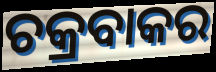
ଚକ୍ରବାକର